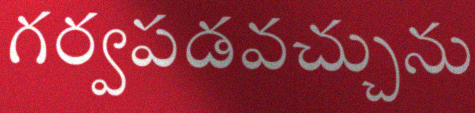
గర్వపడవచ్చును